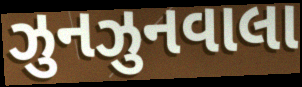
ઝુનઝુનવાલા